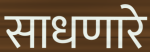
साधणारे